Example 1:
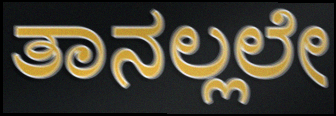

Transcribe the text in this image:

ತಾನಲ್ಲಲೇ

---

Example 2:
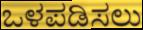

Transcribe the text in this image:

ಒಳಪಡಿಸಲು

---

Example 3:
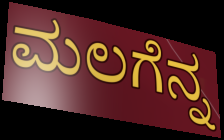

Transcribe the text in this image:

ಮಲಗೆನ್ನ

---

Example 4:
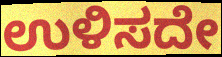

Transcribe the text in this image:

ಉಳಿಸದೇ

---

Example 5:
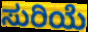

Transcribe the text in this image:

ಸುರಿಯೆ